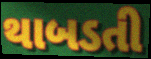
થાબડતી